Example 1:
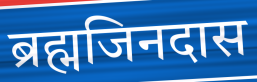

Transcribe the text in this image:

ब्रह्मजिनदास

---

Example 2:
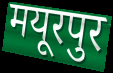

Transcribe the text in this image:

मयूरपुर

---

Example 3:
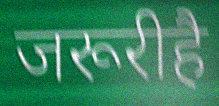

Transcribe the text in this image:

जरूरीहै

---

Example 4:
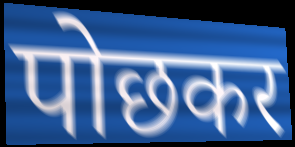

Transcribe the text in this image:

पोछकर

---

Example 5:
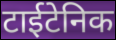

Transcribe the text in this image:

टाईटेनिक